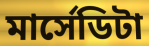
মার্সেডিটা